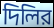
দিলির